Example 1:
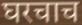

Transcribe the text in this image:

घरचाच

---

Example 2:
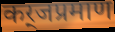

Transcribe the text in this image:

कर्जप्रमाण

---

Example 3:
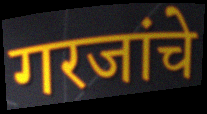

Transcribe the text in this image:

गरजांचे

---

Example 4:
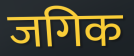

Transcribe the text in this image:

जगिक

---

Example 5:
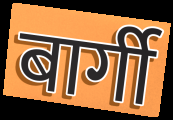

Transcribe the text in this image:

बार्गी